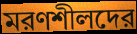
মরণশীলদের